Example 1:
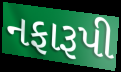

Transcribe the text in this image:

નફારૂપી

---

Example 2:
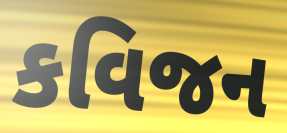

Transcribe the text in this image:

કવિજન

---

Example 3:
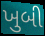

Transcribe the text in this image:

ખુબી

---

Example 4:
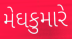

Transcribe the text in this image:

મેઘકુમારે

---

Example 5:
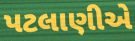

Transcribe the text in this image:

પટલાણીએ